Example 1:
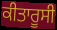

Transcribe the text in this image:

ਕੀਤਾਰੂਸੀ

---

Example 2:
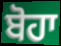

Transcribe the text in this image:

ਬੋਹਾ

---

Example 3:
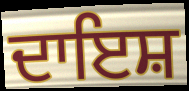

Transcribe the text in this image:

ਦਾਇਸ਼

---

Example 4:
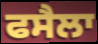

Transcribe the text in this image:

ਫਸੈਲਾ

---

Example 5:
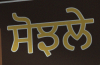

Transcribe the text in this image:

ਸੋਝਲੇ